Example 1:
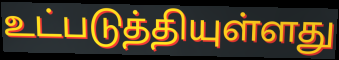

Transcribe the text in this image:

உட்படுத்தியுள்ளது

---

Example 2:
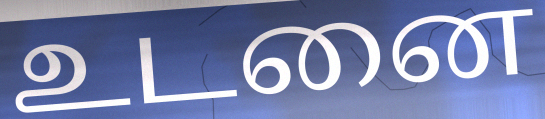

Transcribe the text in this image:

உடனை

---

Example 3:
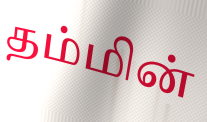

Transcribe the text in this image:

தம்மின்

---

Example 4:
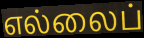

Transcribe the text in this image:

எல்லைப்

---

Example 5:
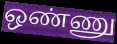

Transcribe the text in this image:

ஒண்ணு